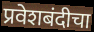
प्रवेशबंदीचा